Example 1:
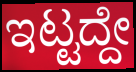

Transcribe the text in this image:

ಇಟ್ಟದ್ದೇ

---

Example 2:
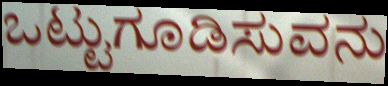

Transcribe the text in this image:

ಒಟ್ಟುಗೂಡಿಸುವನು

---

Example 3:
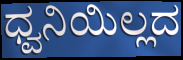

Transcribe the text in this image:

ಧ್ವನಿಯಿಲ್ಲದ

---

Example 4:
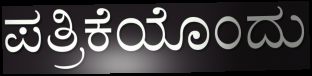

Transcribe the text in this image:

ಪತ್ರಿಕೆಯೊಂದು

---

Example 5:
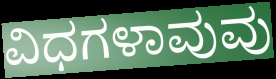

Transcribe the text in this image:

ವಿಧಗಳಾವುವು